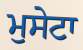
ਮੁਸੇਟਾ